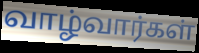
வாழ்வார்கள்